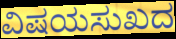
ವಿಷಯಸುಖದ